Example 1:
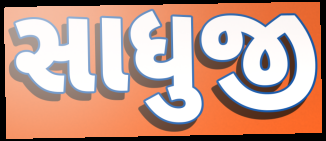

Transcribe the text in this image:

સાધુજી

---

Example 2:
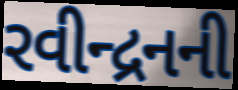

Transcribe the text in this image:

રવીન્દ્રનની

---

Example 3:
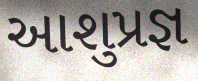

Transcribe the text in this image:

આશુપ્રજ્ઞ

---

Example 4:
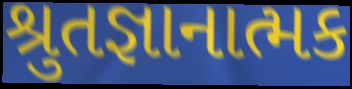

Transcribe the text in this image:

શ્રુતજ્ઞાનાત્મક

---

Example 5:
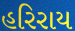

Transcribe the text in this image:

હરિરાય